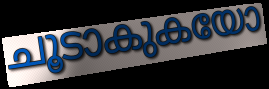
ചൂടാകുകയോ